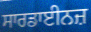
ਸਾਰਡਾਈਨਜ਼